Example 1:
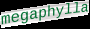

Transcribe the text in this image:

megaphylla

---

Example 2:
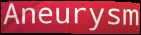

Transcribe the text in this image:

Aneurysm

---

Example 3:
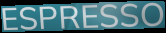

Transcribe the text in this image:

ESPRESSO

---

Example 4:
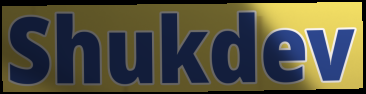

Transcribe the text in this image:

Shukdev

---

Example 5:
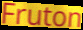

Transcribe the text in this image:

Fruton